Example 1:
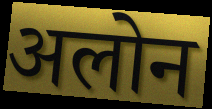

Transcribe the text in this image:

अलोन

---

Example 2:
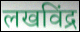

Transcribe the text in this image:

लखविंद्र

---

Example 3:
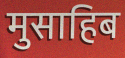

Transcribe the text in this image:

मुसाहिब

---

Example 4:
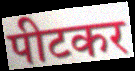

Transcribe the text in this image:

पीटकर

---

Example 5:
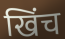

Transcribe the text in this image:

खिंच